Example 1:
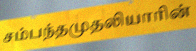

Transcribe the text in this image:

சம்பந்தமுதலியாரின்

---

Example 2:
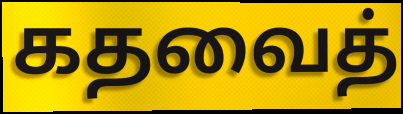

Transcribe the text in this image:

கதவைத்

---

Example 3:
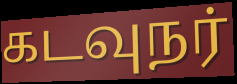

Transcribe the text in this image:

கடவுநர்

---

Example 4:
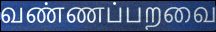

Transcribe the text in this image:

வண்ணப்பறவை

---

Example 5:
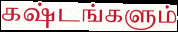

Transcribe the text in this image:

கஷ்டங்களும்